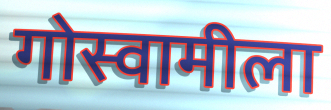
गोस्वामीला